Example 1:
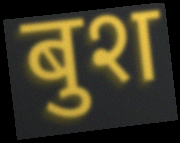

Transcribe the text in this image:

बुश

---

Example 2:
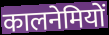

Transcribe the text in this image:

कालनेमियों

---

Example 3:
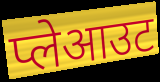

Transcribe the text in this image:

प्लेआउट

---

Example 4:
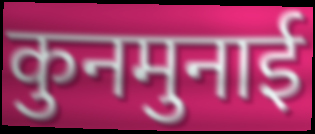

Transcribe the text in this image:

कुनमुनाई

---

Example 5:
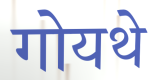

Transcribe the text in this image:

गोयथे